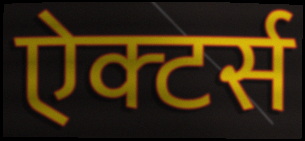
ऐक्‍टर्स